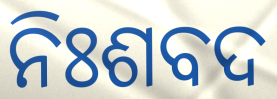
ନିଃଶବଦ